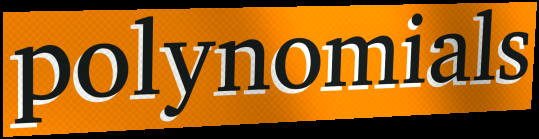
polynomials